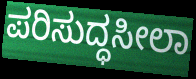
ಪರಿಸುದ್ಧಸೀಲಾ